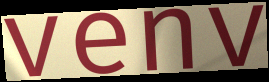
venv